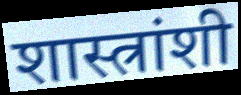
शास्त्रांशी